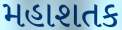
મહાશતક